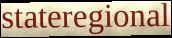
stateregional